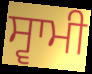
ਸ੍ਵਾਮੀ